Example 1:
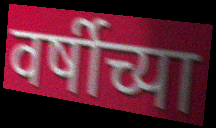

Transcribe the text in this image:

वर्षीच्या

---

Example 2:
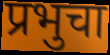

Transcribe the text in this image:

प्रभुचा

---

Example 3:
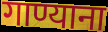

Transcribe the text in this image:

गाण्याना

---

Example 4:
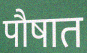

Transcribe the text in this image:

पौषात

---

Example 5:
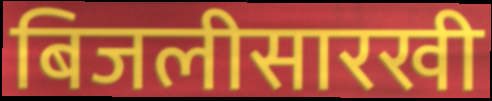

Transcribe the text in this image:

बिजलीसारखी